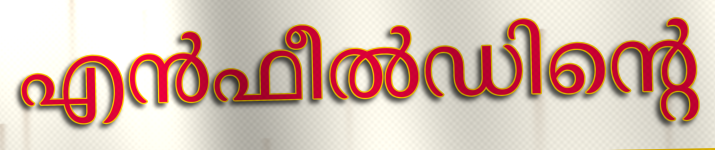
എൻഫീൽഡിന്റെ